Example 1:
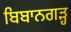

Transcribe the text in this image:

ਬਿਬਾਨਗੜ੍ਹ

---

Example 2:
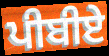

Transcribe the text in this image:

ਪੀਬੀਏ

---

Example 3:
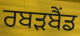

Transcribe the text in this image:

ਰਬੜਬੈਂਡ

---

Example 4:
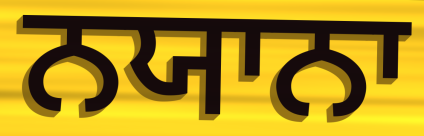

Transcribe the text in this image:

ਨਯਾਨਾ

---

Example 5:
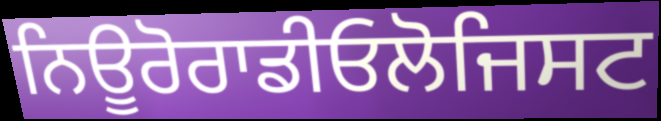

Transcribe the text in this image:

ਨਿਊਰੋਰਾਡੀਓਲੋਜਿਸਟ